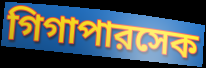
গিগাপারসেক